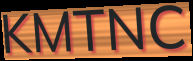
KMTNC